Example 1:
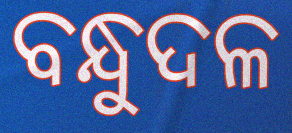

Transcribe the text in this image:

ବନ୍ଧୁଦଳ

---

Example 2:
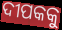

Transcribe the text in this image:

ଦୀପକକୁ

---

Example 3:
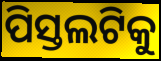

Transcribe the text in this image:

ପିସ୍ତଲଟିକୁ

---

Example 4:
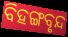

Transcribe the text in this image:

ବିହଙ୍ଗବୃନ୍ଦ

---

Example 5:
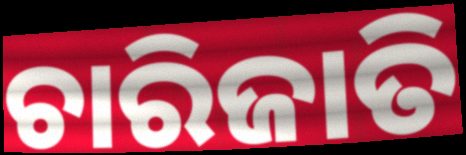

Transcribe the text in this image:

ଚାରିଜାତି